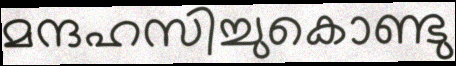
മന്ദഹസിച്ചുകൊണ്ടു